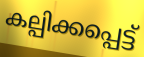
കല്പിക്കപ്പെട്ട്